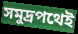
সমুদ্রপথেই